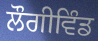
ਲੌਗੀਵਿੰਡ